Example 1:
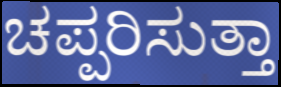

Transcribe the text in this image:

ಚಪ್ಪರಿಸುತ್ತಾ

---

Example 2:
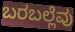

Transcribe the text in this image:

ಬರಬಲ್ಲೆವು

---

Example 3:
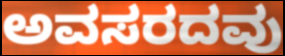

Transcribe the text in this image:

ಅವಸರದವು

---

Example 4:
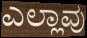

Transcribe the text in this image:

ಎಲ್ಲಾವು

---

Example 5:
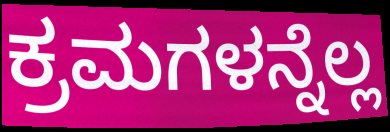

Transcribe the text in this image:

ಕ್ರಮಗಳನ್ನೆಲ್ಲ